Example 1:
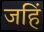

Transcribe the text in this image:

जहिं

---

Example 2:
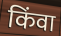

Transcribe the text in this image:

किंवा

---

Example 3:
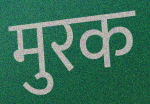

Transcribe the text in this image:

मुरक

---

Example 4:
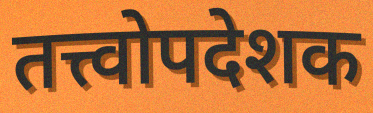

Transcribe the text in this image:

तत्त्वोपदेशक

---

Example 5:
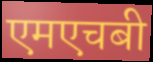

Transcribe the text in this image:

एमएचबी